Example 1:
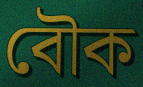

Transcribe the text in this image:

বৌক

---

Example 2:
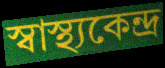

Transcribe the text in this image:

স্বাস্থ্যকেন্দ্ৰ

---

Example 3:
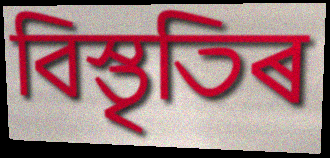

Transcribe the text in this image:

বিস্তৃতিৰ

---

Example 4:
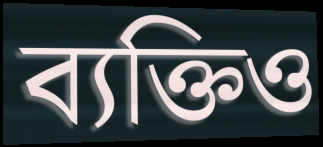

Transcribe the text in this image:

ব্যক্তিও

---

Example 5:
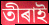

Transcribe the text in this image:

তীৰাই